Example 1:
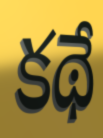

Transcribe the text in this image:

కథే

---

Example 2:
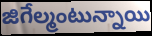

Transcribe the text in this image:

జిగేల్మంటున్నాయి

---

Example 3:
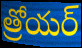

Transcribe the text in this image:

త్రోయర్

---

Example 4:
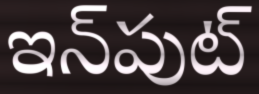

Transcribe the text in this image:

ఇన్‌పుట్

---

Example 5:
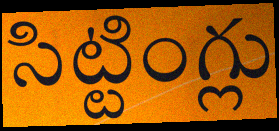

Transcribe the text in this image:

సిట్టింగ్లు